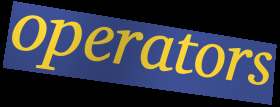
operators